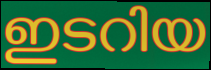
ഇടറിയ